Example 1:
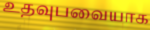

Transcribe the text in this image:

உதவுபவையாக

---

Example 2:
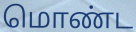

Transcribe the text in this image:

மொண்ட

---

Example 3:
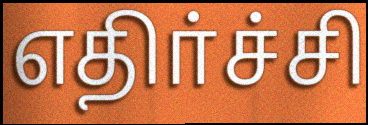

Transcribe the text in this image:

எதிர்ச்சி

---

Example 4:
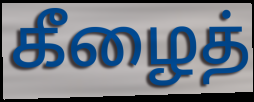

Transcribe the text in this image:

கீழைத்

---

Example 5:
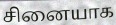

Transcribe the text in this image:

சினையாக